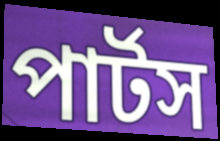
পার্টস